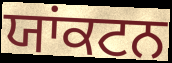
ਯਾਂਕਟਨ